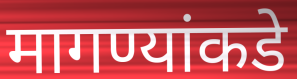
मागण्यांकडे